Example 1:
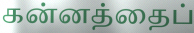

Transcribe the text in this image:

கன்னத்தைப்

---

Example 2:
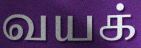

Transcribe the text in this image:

வயக்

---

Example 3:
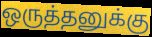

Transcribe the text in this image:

ஒருத்தனுக்கு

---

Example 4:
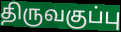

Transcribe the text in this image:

திருவகுப்பு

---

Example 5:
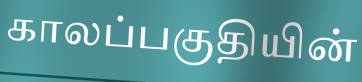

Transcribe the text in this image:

காலப்பகுதியின்